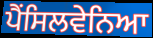
ਪੈਂਸਿਲਵੇਨਿਆ